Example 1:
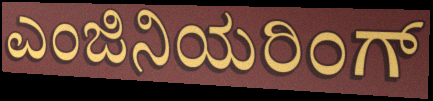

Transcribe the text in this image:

ಎಂಜಿನಿಯರಿಂಗ್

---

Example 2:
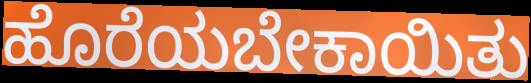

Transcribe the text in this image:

ಹೊರೆಯಬೇಕಾಯಿತು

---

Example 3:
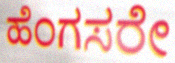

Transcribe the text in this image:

ಹೆಂಗಸರೇ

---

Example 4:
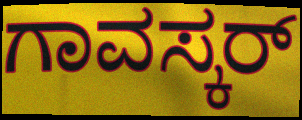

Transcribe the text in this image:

ಗಾವಸ್ಕರ್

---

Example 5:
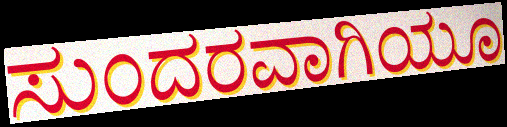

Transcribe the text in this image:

ಸುಂದರವಾಗಿಯೂ